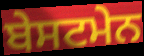
ਬੇਸਟਮੇਨ